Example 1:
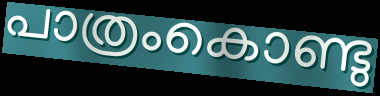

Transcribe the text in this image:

പാത്രംകൊണ്ടു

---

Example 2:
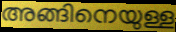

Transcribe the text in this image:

അങ്ങിനെയുള്ള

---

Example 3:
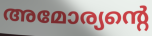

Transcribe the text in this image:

അമോര്യന്റെ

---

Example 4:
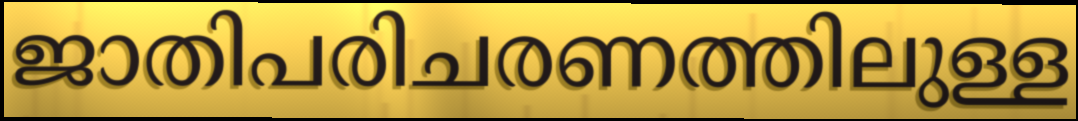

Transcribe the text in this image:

ജാതിപരിചരണത്തിലുള്ള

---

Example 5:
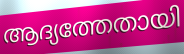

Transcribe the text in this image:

ആദ്യത്തേതായി